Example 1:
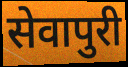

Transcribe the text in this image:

सेवापुरी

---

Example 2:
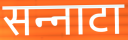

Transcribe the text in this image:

सन्नाटा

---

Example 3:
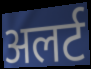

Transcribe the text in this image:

अलर्ट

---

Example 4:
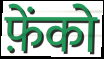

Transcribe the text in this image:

फ़ेंको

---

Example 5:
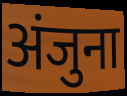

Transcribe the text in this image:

अंजुना